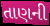
તાણની